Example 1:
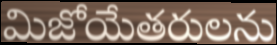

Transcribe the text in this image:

మిజోయేతరులను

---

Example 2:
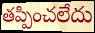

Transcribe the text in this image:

తప్పించలేదు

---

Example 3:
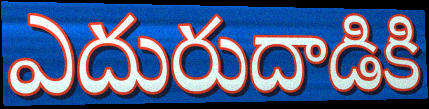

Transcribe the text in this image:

ఎదురుదాడికి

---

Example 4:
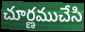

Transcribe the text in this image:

చూర్ణముచేసి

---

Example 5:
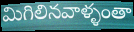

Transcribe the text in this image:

మిగిలినవాళ్ళంతా